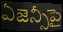
ఏజెన్సీపై